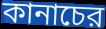
কানাচের